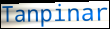
Tanpinar